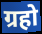
ग्रहो